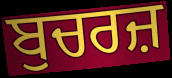
ਬੁਚਰਜ਼